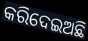
କରିଦେଇଅଛି